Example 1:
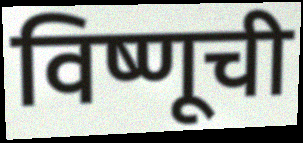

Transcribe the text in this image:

विष्णूची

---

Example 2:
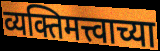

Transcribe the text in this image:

व्यक्तिमत्त्वाच्या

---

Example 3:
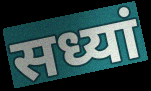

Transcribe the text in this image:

सध्यां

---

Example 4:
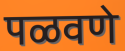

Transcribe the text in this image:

पळवणे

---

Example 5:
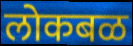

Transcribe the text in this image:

लोकबळ